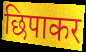
छिपाकर